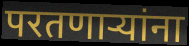
परतणाऱ्यांना